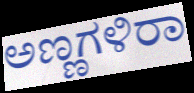
ಅಣ್ಣಗಳಿರಾ